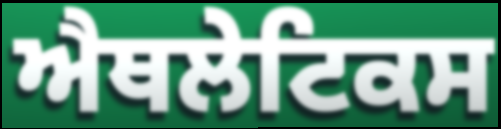
ਐਥਲੇਟਿਕਸ